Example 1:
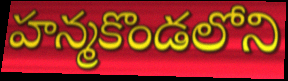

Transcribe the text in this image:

హన్మకొండలోని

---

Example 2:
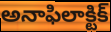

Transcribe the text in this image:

అనాఫిలాక్టిక్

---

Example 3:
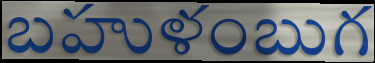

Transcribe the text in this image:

బహుళంబుగ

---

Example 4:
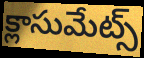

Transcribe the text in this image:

క్లాసుమేట్స్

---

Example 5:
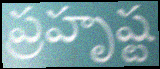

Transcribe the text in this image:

ప్రహృష్ట